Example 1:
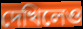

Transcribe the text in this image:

দেখিলেও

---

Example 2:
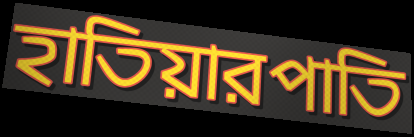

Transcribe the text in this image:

হাতিয়ারপাতি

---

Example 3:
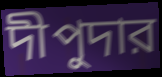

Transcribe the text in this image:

দীপুদার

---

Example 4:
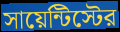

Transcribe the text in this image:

সায়েন্টিস্টের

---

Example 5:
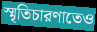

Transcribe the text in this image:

স্মৃতিচারণাতেও